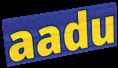
aadu